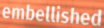
embellished